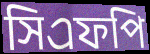
সিএফপি